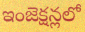
ఇంజెక్షన్లలో